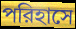
পরিহাসে